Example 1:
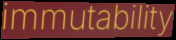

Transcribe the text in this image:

immutability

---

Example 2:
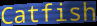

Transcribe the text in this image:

Catfish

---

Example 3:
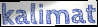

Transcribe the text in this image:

kalimat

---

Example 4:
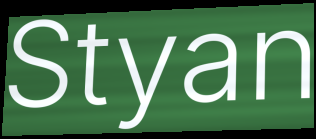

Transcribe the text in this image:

Styan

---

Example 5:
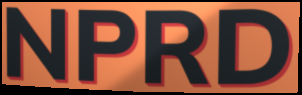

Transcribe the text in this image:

NPRD